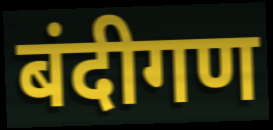
बंदीगण